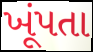
ખૂંપતા